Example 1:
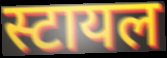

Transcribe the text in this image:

स्टायल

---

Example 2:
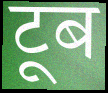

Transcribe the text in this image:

टूब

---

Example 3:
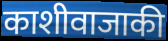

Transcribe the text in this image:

काशीवाजाकी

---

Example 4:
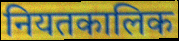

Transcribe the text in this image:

नियतकालिक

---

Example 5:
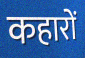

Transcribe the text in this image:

कहारों